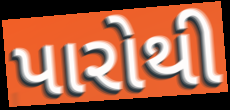
પારોથી